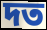
দত